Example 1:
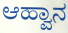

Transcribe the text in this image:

ಆಹ್ವಾನ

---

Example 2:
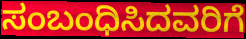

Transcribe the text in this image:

ಸಂಬಂಧಿಸಿದವರಿಗೆ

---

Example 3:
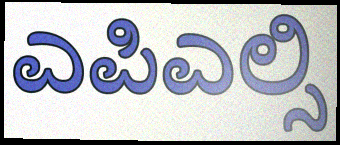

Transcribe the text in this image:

ಎಪಿಎಲ್ಸಿ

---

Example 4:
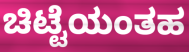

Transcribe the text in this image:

ಚಿಟ್ಟೆಯಂತಹ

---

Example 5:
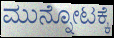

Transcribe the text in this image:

ಮುನ್ನೋಟಕ್ಕೆ